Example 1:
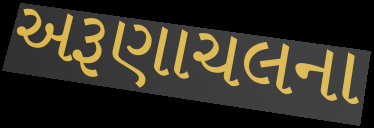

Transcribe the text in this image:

અરૂણાચલના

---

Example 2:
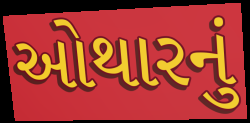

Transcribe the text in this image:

ઓથારનું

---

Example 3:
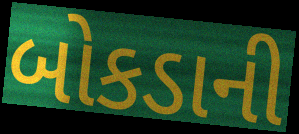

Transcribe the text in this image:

બોકડાની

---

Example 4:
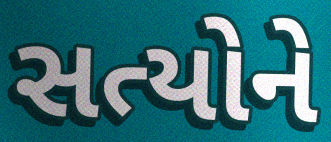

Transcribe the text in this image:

સત્યોને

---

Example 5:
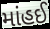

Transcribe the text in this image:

માંહઈ